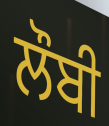
ਲੌਬੀ